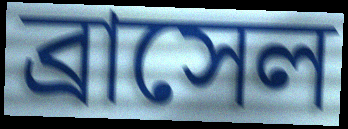
ব্রাসেল